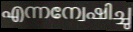
എന്നന്വേഷിച്ചു